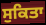
ਸੁਕਿਤਾ